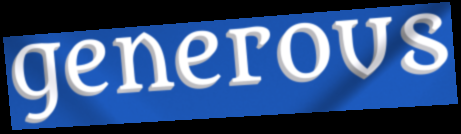
generous